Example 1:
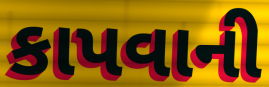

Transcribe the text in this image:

કાપવાની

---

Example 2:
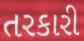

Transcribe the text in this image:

તરકારી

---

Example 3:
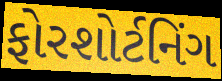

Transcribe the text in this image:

ફોરશોર્ટનિંગ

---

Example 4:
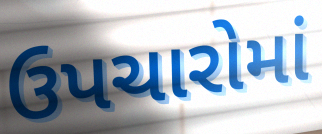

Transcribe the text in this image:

ઉપચારોમાં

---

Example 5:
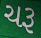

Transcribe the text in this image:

ચરૂ